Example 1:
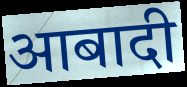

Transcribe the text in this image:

आबादी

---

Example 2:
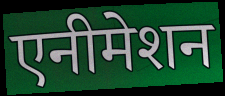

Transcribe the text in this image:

एनीमेशन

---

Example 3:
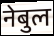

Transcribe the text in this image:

नेबुल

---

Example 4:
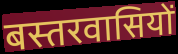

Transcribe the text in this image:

बस्तरवासियों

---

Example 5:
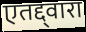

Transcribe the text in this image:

एतद्द्वारा